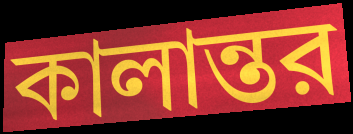
কালান্তর